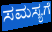
ಸಮಸ್ಯಗೆ